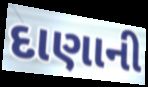
દાણાની